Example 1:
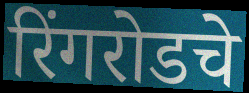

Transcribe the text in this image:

रिंगरोडचे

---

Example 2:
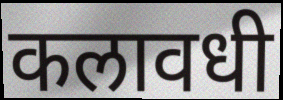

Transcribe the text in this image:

कलावधी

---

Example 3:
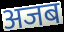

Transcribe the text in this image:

अजब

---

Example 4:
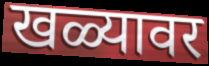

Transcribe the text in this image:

खळ्यावर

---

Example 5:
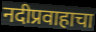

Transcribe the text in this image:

नदीप्रवाहाचा